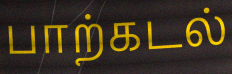
பாற்கடல்